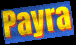
Payra